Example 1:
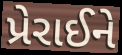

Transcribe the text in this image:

પ્રેરાઈને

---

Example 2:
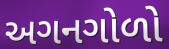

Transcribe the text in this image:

અગનગોળો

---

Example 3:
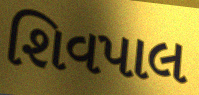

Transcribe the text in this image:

શિવપાલ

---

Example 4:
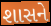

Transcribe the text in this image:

શાસને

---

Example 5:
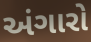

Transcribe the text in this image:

અંગારો